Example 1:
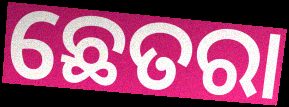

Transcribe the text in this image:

ଛେତରା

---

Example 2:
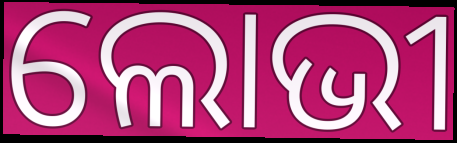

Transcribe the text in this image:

ଲୋଭୀ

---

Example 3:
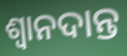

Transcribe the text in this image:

ଶ୍ଵାନଦାନ୍ତ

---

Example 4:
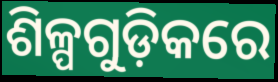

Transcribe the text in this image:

ଶିଳ୍ପଗୁଡ଼ିକରେ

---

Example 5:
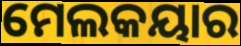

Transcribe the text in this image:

ମେଲକୟାର